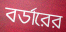
বর্ডারের